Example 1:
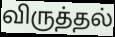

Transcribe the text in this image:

விருத்தல்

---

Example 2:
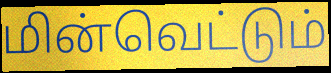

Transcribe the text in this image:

மின்வெட்டும்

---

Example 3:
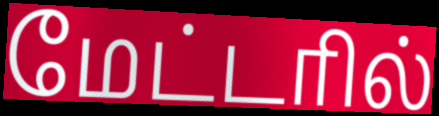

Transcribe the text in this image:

மேட்டரில்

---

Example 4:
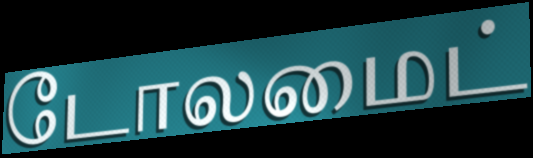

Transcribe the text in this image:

டோலமைட்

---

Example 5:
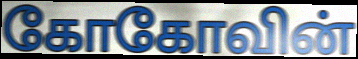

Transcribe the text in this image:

கோகோவின்